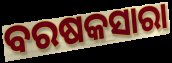
ବରଷକସାରା